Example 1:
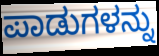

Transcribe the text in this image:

ಪಾಡುಗಳನ್ನು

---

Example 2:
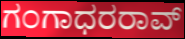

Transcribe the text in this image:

ಗಂಗಾಧರರಾವ್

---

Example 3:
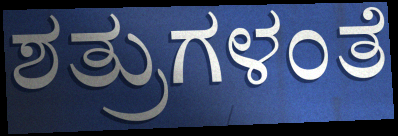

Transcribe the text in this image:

ಶತ್ರುಗಳಂತೆ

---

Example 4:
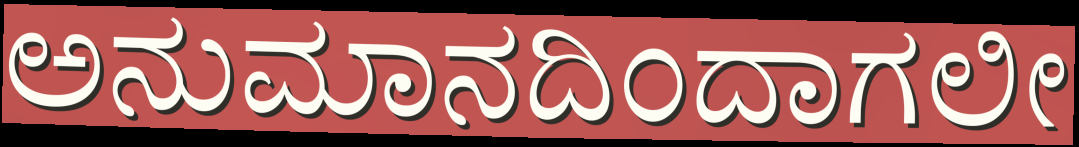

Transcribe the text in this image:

ಅನುಮಾನದಿಂದಾಗಲೀ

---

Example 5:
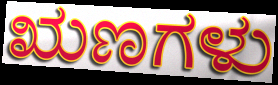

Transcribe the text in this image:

ಋಣಗಳು